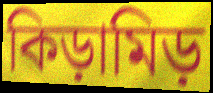
কিড়ামিড়